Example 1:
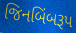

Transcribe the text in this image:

જિનબિંબરૂપ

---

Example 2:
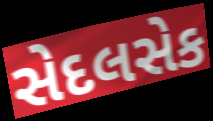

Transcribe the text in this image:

સેદલસેક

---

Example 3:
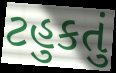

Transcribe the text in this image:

ટહુકતું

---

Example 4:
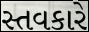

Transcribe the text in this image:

સ્તવકારે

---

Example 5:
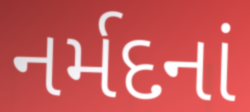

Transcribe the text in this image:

નર્મદનાં